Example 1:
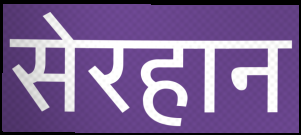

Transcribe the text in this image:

सेरहान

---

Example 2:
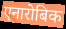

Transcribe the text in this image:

एनारोबिक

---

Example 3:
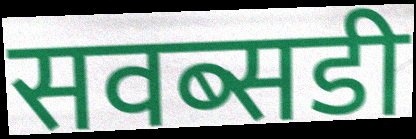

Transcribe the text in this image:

सवब्सडी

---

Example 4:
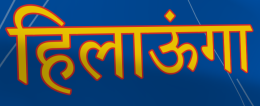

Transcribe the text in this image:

हिलाऊंगा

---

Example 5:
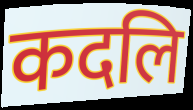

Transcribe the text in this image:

कदलि